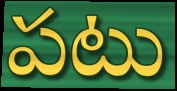
పటు